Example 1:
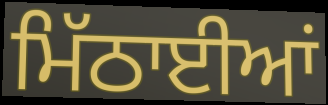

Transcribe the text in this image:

ਮਿੱਠਾਈਆਂ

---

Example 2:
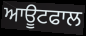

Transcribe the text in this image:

ਆਊਟਫਾਲ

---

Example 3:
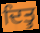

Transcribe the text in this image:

ਦਿਤ੍ਤ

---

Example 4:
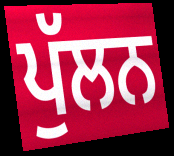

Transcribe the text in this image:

ਪੁੱਲਨ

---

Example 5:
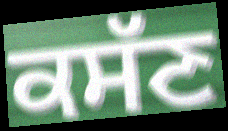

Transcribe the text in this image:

ਕਸੱਣ